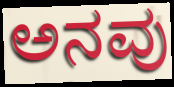
ಅನವು